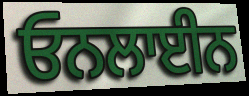
ਓਨਲਾਈਨ